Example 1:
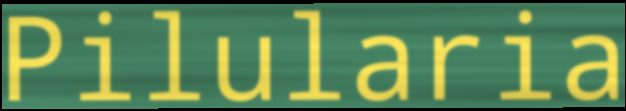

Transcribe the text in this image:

Pilularia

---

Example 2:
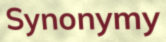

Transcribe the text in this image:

Synonymy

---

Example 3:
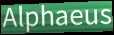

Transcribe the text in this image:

Alphaeus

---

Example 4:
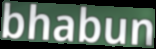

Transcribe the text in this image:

bhabun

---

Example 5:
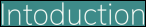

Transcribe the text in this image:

Intoduction